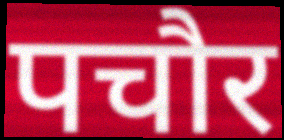
पचौर